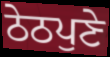
ਠੇਠਪੁਣੇ